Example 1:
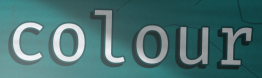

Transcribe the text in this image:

colour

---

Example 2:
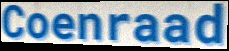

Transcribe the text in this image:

Coenraad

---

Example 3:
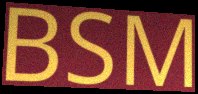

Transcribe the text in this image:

BSM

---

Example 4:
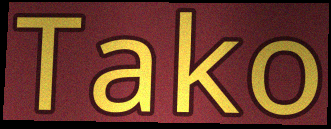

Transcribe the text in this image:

Tako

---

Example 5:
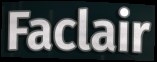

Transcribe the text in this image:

Faclair